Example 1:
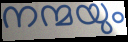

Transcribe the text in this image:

നന്മയും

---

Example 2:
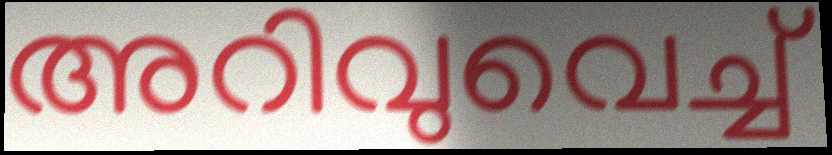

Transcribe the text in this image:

അറിവുവെച്ച്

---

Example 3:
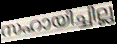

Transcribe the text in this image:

സഹായിച്ചില്ല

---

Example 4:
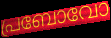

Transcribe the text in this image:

പ്രബോവോ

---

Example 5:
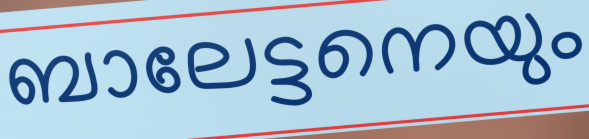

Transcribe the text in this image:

ബാലേട്ടനെയും